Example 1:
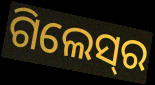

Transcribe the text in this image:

ଗିଲେସ୍‍ର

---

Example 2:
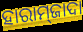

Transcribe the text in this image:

ହାରାମ୍‌ଜାଦା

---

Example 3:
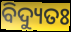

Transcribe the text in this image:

ବିଦ୍ୟୁତଃ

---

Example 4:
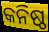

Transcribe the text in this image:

କନିଷ୍ଠ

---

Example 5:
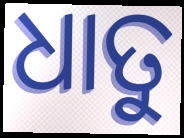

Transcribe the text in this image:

ଧାତୁ